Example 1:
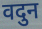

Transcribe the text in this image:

वदुन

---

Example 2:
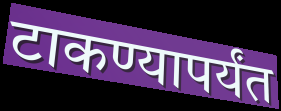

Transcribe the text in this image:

टाकण्यापर्यंत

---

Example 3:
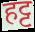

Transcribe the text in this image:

हट्ट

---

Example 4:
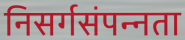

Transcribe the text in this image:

निसर्गसंपन्नता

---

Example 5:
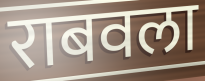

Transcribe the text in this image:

राबवला